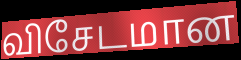
விசேடமான